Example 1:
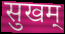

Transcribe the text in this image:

सुखम्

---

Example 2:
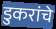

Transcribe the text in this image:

डुकरांचे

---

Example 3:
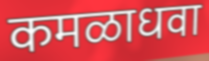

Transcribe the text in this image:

कमळाधवा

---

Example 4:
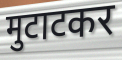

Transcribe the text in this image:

मुटाटकर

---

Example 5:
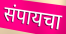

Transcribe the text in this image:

संपायचा